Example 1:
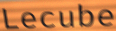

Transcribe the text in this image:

Lecube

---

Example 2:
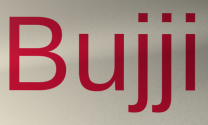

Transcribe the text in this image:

Bujji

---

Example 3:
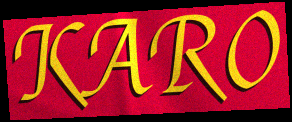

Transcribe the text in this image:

KARO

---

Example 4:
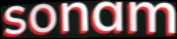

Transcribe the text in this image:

sonam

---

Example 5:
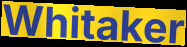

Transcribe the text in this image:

Whitaker